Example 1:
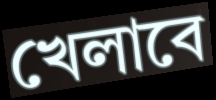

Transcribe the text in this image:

খেলাবে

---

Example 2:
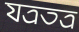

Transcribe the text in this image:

যত্রতত্র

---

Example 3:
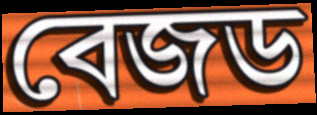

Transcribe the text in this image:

বেজড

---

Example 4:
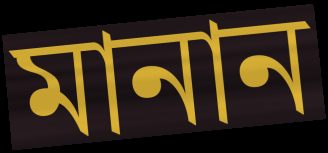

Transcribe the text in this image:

মানান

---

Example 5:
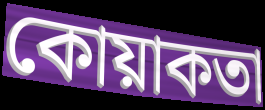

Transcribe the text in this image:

কোয়াকতা